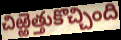
చిఱ్ఱెత్తుకొచ్చింది